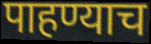
पाहण्याच